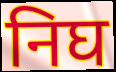
निघ